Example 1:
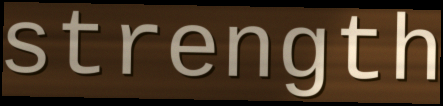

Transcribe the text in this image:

strength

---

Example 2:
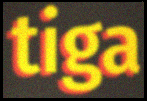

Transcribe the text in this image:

tiga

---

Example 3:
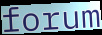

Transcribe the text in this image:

forum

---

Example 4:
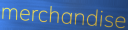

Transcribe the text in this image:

merchandise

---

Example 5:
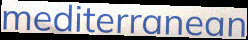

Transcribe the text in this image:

mediterranean